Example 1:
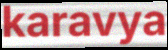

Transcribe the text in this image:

karavya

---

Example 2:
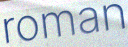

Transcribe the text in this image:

roman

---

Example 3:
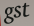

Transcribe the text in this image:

gst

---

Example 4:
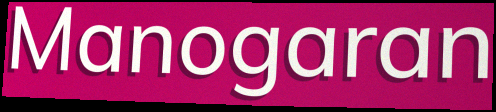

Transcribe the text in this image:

Manogaran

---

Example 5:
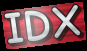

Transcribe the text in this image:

IDX